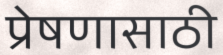
प्रेषणासाठी